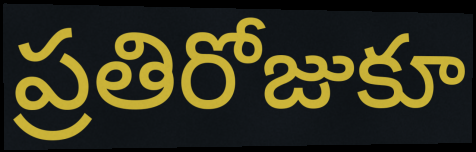
ప్రతిరోజుకూ